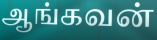
ஆங்கவன்